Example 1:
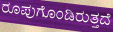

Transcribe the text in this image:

ರೂಪುಗೊಂಡಿರುತ್ತದೆ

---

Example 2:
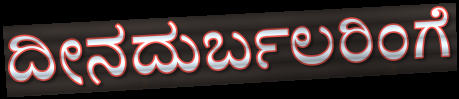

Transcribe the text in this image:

ದೀನದುರ್ಬಲರಿಂಗೆ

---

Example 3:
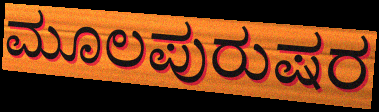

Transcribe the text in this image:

ಮೂಲಪುರುಷರ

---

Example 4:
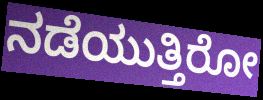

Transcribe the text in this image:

ನಡೆಯುತ್ತಿರೋ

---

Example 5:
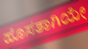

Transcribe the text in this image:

ಹೊಸತಾಗಿಯೇ